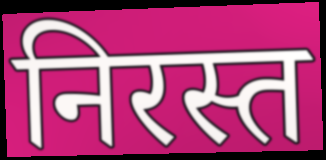
निरस्त